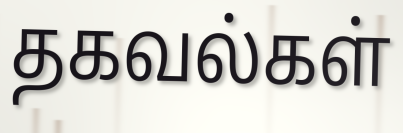
தகவல்கள்